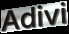
Adivi